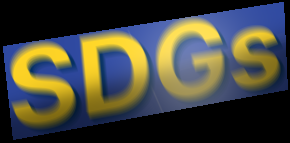
SDGs